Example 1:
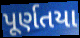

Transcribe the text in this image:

પૂર્ણતયા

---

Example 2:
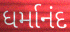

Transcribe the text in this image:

ધર્માનંદ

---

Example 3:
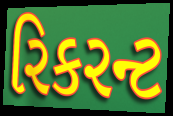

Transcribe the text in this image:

રિકરન્ટ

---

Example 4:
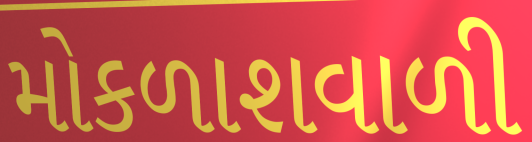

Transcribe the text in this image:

મોકળાશવાળી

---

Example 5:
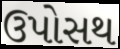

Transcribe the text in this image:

ઉપોસથ